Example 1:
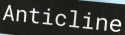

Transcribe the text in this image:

Anticline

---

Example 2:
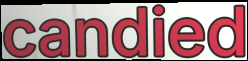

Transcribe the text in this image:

candied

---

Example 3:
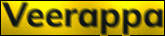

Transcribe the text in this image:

Veerappa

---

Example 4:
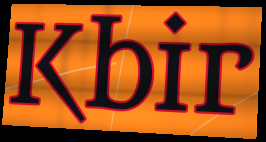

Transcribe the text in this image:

Kbir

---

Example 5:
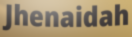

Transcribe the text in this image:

Jhenaidah